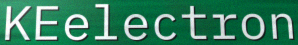
KEelectron